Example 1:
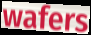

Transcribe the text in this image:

wafers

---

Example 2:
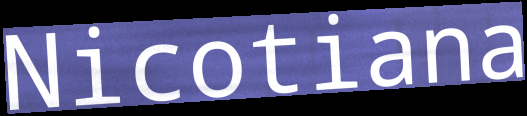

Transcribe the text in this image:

Nicotiana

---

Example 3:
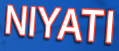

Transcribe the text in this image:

NIYATI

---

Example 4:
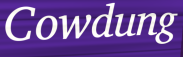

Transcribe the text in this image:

Cowdung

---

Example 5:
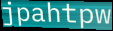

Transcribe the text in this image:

jpahtpw